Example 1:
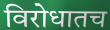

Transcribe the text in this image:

विरोधातच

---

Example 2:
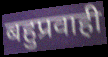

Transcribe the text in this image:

बहुप्रवाही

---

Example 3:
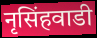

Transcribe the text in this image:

नृसिंहवाडी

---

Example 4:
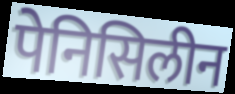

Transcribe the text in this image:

पेनिसिलीन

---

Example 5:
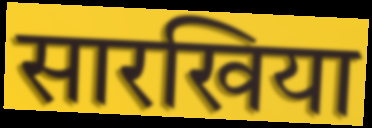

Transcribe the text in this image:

सारखिया